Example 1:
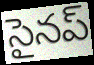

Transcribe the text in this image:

సైనప్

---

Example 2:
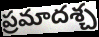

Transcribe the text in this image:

ప్రమాదశ్చ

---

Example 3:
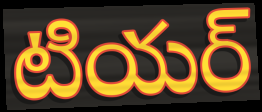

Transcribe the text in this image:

టియర్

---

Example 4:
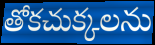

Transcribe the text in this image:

తోకచుక్కలను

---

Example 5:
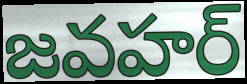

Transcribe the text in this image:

జవహర్